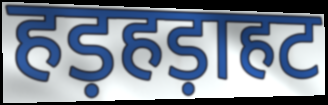
हड़हड़ाहट